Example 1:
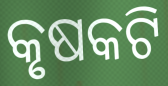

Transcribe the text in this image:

କୃଷକଟି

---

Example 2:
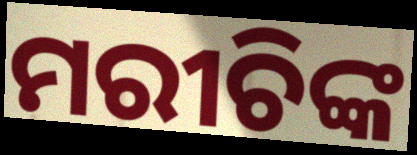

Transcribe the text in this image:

ମରୀଚିଙ୍କ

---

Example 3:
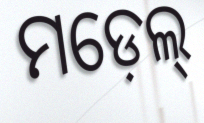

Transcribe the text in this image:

ମଡ଼େଲ୍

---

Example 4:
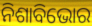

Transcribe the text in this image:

ନିଶାବିଭୋର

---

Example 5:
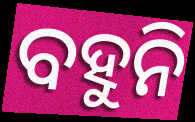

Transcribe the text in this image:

ବହୁନି